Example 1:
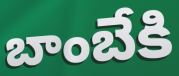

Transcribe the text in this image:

బాంబేకి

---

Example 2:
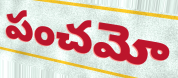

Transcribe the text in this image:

పంచమో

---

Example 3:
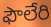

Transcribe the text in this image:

ఫౌలేరి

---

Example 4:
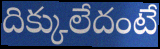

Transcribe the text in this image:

దిక్కులేదంటే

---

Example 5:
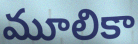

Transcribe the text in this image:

మూలికా